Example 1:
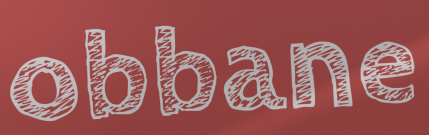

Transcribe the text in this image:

obbane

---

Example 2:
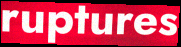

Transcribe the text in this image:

ruptures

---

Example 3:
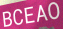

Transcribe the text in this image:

BCEAO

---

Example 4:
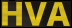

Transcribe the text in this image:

HVA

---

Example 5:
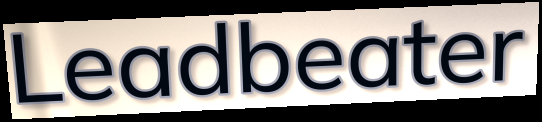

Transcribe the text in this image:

Leadbeater